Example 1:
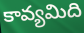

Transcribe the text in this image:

కావ్యమిది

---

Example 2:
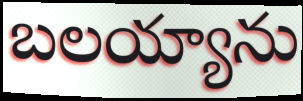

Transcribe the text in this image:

బలయ్యాను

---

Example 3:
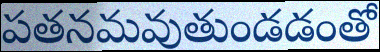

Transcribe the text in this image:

పతనమవుతుండడంతో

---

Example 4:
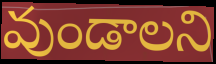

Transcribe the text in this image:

వుండాలని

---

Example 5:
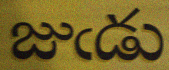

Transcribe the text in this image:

జుఁడు